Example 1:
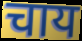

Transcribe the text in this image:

चाय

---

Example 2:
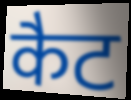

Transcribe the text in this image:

कैट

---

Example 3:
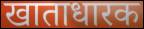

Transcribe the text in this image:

खाताधारक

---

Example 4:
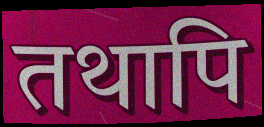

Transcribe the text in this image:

तथापि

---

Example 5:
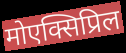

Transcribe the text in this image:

मोएक्सिप्रिल